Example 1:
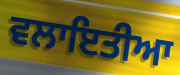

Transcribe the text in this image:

ਵਲਾਇਤੀਆ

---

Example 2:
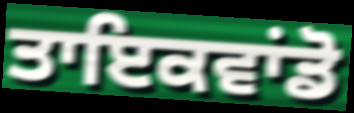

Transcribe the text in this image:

ਤਾਇਕਵਾਂਡੋ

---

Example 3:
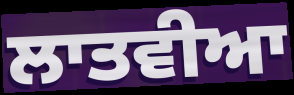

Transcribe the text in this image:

ਲਾਤਵੀਆ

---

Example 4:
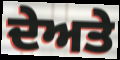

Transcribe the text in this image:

ਦੇਅਤੇ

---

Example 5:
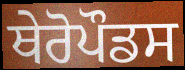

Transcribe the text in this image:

ਥੇਰੋਪੌਡਸ